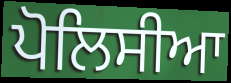
ਪੋਲਿਸੀਆ